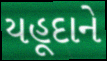
યહૂદાને